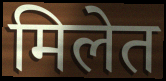
मिलेत